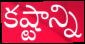
కష్టాన్ని